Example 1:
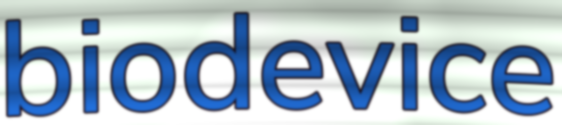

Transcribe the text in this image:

biodevice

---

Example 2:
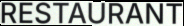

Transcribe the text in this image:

RESTAURANT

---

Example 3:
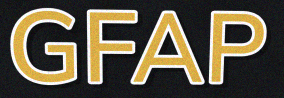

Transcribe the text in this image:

GFAP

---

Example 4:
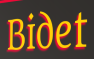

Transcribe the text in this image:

Bidet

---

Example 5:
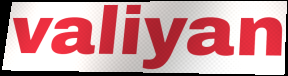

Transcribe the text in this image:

valiyan